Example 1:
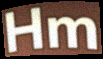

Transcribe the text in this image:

Hm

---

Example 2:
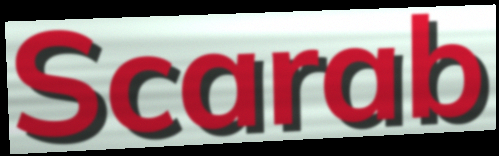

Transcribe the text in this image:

Scarab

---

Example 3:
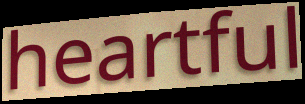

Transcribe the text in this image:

heartful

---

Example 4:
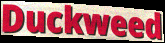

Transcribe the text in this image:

Duckweed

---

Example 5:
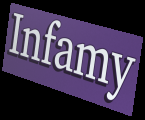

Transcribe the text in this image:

Infamy